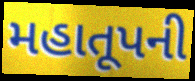
મહાતૂપની